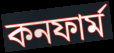
কনফাৰ্ম